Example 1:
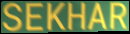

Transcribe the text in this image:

SEKHAR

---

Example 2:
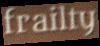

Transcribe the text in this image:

frailty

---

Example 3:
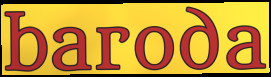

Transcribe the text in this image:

baroda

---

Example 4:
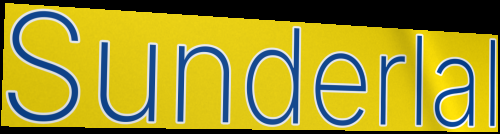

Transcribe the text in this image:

Sunderlal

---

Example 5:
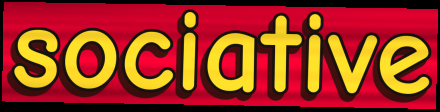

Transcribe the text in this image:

sociative